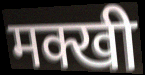
मक्खी